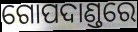
ଗୋପଦାଣ୍ଡରେ